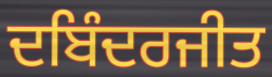
ਦਬਿੰਦਰਜੀਤ